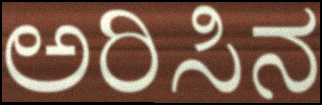
ಅರಿಸಿನ